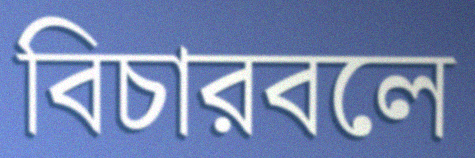
বিচারবলে